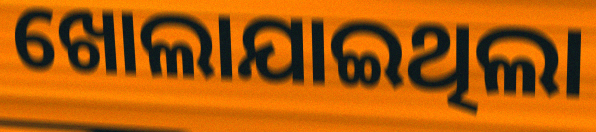
ଖୋଲାଯାଇଥିଲା